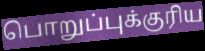
பொறுப்புக்குரிய